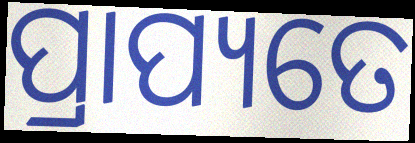
ପ୍ରାପ୍ୟତେ